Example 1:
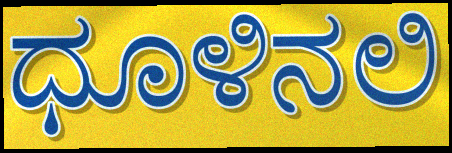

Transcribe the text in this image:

ಧೂಳಿನಲಿ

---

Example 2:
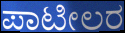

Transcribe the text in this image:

ಪಾಟೀಲರ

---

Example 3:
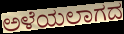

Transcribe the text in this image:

ಅಳೆಯಲಾಗದ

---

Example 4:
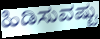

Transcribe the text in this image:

ಹಿಡಿಸುವಷ್ಟು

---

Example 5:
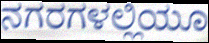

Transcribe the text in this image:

ನಗರಗಳಲ್ಲಿಯೂ